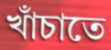
খাঁচাতে